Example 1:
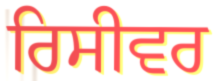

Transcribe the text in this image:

ਰਿਸੀਵਰ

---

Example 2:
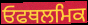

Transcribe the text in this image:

ਓਫਥਲਮਿਕ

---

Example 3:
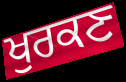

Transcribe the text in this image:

ਖੁਰਕਣ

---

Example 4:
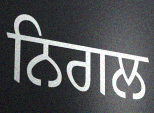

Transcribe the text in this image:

ਨਿਗਲ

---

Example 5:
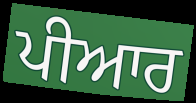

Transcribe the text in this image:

ਪੀਆਰ